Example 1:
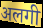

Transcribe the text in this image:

अलगी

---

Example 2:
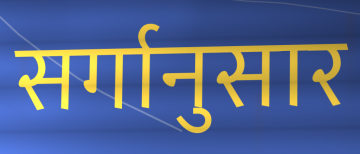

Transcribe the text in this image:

सर्गानुसार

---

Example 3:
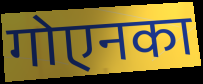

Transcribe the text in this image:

गोएनका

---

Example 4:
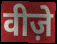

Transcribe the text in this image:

वीज़े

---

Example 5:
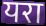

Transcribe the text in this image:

यरा